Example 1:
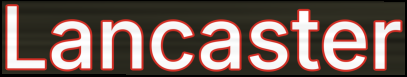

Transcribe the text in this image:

Lancaster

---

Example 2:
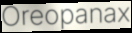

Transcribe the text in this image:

Oreopanax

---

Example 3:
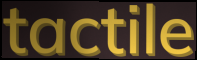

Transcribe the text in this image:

tactile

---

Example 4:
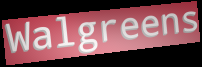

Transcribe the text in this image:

Walgreens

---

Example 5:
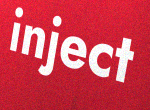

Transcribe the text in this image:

inject